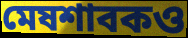
মেষশাবকও